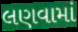
લણવામાં